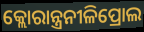
କ୍ଲୋରାନ୍ତ୍ରନୀଳିପ୍ରୋଲ